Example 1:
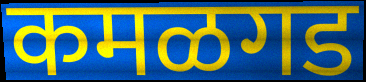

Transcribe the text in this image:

कमळगड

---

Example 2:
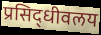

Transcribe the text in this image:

प्रसिद्धीवलय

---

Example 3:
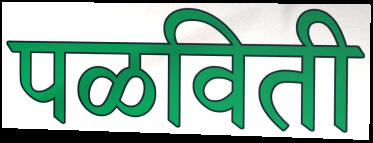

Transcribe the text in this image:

पळविती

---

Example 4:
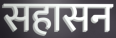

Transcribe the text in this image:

सहासन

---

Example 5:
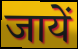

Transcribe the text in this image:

जायें